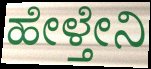
ಹೇಳ್ತೇನಿ